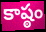
కాష్ఠం